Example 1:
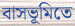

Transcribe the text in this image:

বাসভূমিতে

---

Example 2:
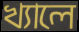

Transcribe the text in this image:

খ্যালে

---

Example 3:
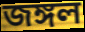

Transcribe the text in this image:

জঙ্গল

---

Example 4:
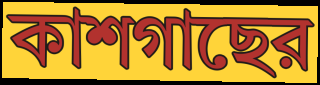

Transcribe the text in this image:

কাশগাছের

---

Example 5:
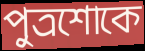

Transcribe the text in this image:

পুত্রশোকে